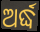
ଅର୍ଦ୍ଧ